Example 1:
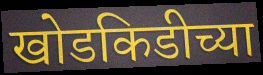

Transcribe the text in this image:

खोडकिडीच्या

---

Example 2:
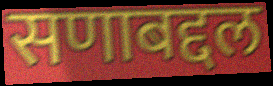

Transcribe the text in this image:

सणाबद्दल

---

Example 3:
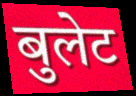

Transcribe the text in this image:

बुलेट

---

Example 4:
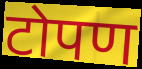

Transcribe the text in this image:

टोपण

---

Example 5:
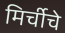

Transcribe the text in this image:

मिर्चीचे